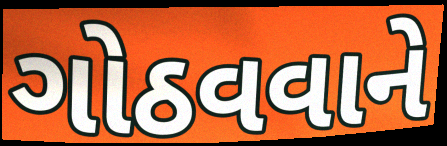
ગોઠવવાને